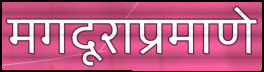
मगदूराप्रमाणे